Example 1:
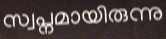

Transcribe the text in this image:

സ്വപ്നമായിരുന്നു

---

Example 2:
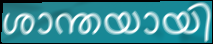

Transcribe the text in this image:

ശാന്തയായി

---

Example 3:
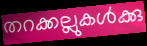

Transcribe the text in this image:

തറക്കല്ലുകൾക്കു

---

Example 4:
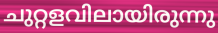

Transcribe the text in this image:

ചുറ്റളവിലായിരുന്നു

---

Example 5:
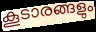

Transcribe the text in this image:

കൂടാരങ്ങളും